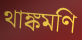
থাঙ্কমণি